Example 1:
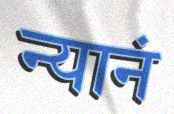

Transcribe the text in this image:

न्यानं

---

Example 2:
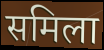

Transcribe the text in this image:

समिला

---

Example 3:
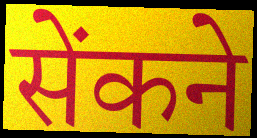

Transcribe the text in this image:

सेंकने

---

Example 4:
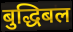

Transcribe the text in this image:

बुद्धिबल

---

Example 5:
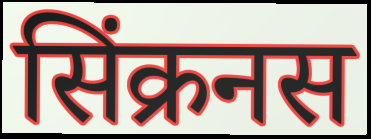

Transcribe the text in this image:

सिंक्रनस